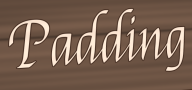
Padding